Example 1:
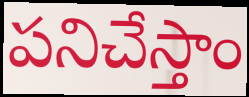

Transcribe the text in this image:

పనిచేస్తాం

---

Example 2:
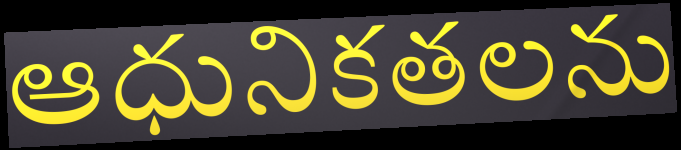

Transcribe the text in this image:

ఆధునికతలను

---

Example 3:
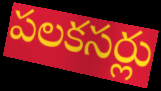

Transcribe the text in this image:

పలకసర్లు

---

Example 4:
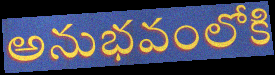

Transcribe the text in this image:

అనుభవంలోకి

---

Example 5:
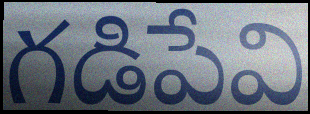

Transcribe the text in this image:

గడిపేవి